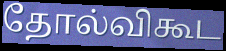
தோல்விகூட